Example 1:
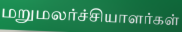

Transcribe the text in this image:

மறுமலர்ச்சியாளர்கள்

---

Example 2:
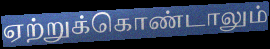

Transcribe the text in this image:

ஏற்றுக்கொண்டாலும்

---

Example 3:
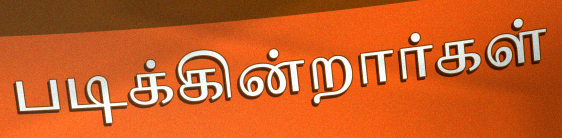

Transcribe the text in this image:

படிக்கின்றார்கள்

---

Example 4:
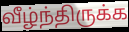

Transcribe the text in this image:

வீழ்ந்திருக்க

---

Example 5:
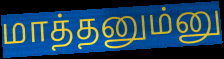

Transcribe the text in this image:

மாத்தனும்னு